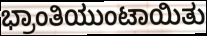
ಭ್ರಾಂತಿಯುಂಟಾಯಿತು